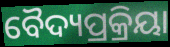
ବୈଦ୍ୟପ୍ରକ୍ରିୟା